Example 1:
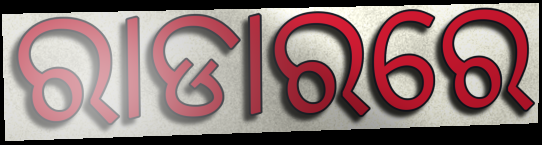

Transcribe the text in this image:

ରାଡାରରେ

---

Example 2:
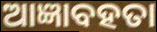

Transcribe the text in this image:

ଆଜ୍ଞାବହତା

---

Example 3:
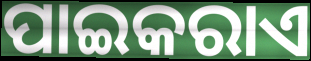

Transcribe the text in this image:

ପାଇକରାଏ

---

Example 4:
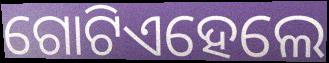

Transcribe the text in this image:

ଗୋଟିଏହେଲେ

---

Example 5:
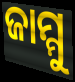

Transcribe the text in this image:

ଜାମ୍ମୁ